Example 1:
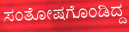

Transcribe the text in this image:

ಸಂತೋಷಗೊಂಡಿದ್ದ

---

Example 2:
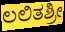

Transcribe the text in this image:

ಲಲಿತಶ್ರೀ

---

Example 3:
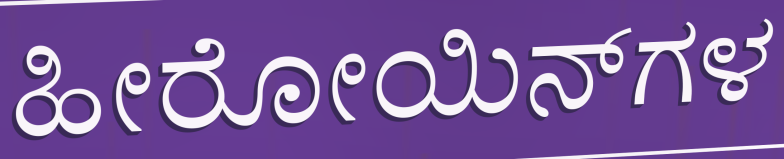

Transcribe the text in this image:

ಹೀರೋಯಿನ್‌ಗಳ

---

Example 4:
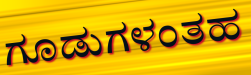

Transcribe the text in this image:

ಗೂಡುಗಳಂತಹ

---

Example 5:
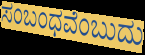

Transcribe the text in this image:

ಸಂಬಂಧವೆಂಬುದು